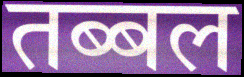
तब्बल